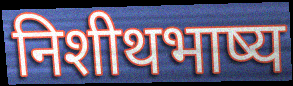
निशीथभाष्य